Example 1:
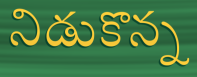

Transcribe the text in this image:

నిడుకొన్న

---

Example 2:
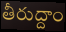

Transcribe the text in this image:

తీరుద్దాం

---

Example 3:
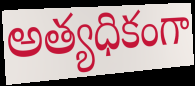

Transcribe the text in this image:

అత్యధికంగా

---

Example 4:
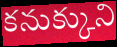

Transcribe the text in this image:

కనుక్కుని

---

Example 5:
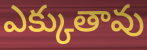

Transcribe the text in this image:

ఎక్కుతావు